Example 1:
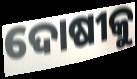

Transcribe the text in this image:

ଦୋଷୀକୁ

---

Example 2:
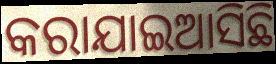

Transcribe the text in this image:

କରାଯାଇଆସିଛି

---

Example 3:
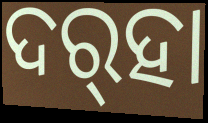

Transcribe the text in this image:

ଦର୍‌ହା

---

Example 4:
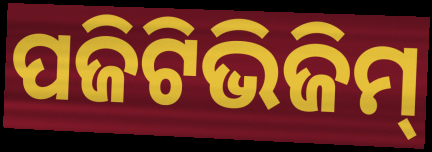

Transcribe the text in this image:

ପଜିଟିଭିଜିମ୍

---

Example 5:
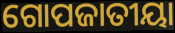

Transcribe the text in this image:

ଗୋପଜାତୀୟା